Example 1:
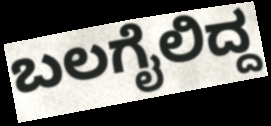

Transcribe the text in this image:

ಬಲಗೈಲಿದ್ದ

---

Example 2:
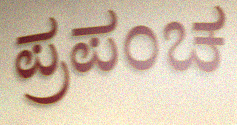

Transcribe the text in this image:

ಪ್ರಪಂಚ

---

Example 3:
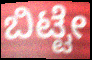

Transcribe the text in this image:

ಬಿಟ್ಟೇ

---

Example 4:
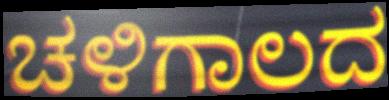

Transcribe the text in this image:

ಚಳಿಗಾಲದ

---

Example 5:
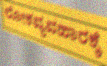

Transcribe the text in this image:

ಲೋಕವ್ಯವಹಾರಕ್ಕೆ